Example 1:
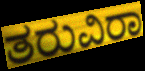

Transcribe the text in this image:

ತರುವಿರಾ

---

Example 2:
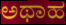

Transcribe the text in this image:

ಅಥಾಹ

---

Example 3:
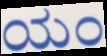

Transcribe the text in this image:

ಯಂ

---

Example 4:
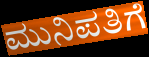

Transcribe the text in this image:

ಮುನಿಪತಿಗೆ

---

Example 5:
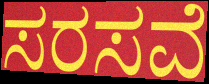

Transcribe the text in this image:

ಸರಸವೆ